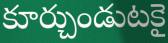
కూర్చుండుటకై